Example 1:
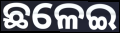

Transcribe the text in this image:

ଛଳେଇ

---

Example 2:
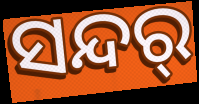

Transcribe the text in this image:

ସନ୍ଦର୍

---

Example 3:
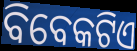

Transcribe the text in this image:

ବିବେକଟିଏ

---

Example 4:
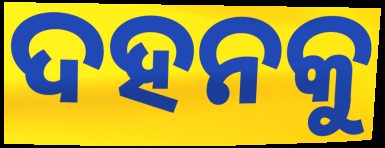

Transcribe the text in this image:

ଦହନକୁ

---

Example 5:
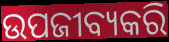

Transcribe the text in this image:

ଉପଜୀବ୍ୟକରି